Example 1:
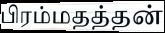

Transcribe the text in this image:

பிரம்மதத்தன்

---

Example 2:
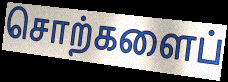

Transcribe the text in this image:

சொற்களைப்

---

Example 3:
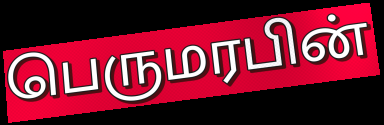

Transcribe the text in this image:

பெருமரபின்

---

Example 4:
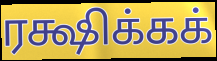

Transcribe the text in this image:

ரக்ஷிக்கக்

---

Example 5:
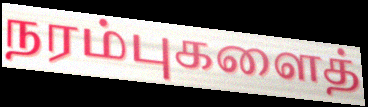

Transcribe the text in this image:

நரம்புகளைத்